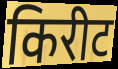
किरीट